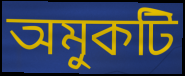
অমুকটি